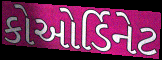
કોઓર્ડિનેટ